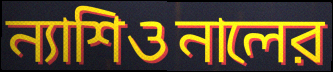
ন্যাশিওনালের